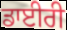
ਡਾਈਰੀ